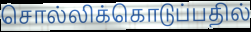
சொல்லிக்கொடுப்பதில்